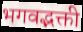
भगवद्भक्ती